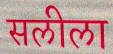
सलीला